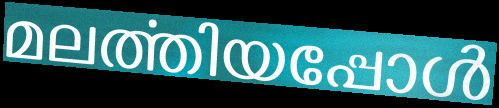
മലൎത്തിയപ്പോൾ